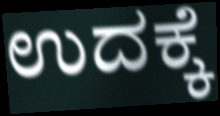
ಉದಕ್ಕೆ